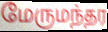
மேருமந்தர